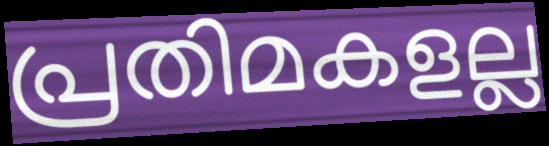
പ്രതിമകളല്ല